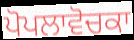
ਪੋਪਲਾਵੋਚਕਾ